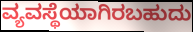
ವ್ಯವಸ್ಥೆಯಾಗಿರಬಹುದು